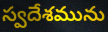
స్వదేశమును